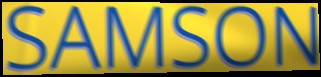
SAMSON